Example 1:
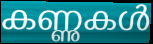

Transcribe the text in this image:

കണ്ണുകൾ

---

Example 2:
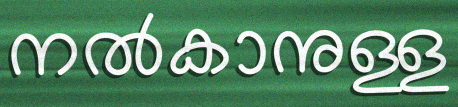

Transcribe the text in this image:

നൽകാനുള്ള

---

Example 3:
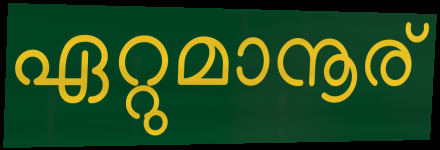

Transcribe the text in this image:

ഏറ്റുമാനൂര്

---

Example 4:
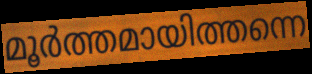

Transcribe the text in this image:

മൂർത്തമായിത്തന്നെ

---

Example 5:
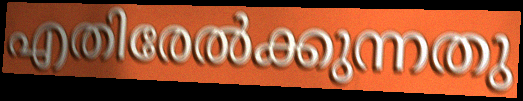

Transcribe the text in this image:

എതിരേൽക്കുന്നതു